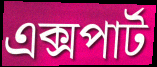
এক্সপার্ট